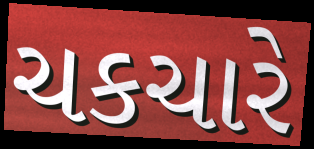
ચકચારે